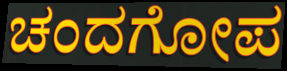
ಚಂದಗೋಪ